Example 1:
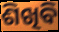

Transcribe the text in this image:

ଶିଖିବି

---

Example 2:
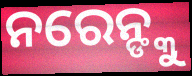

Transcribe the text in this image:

ନରେନ୍ଙ୍କୁ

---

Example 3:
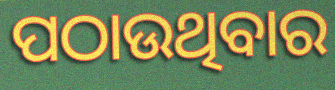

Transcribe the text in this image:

ପଠାଉଥିବାର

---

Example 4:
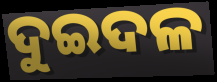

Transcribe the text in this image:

ଦୁଇଦଳ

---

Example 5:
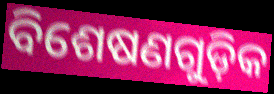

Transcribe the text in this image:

ବିଶେଷଣଗୁଡ଼ିକ